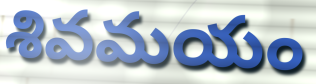
శివమయం